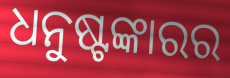
ଧନୁଷ୍ଟଙ୍କାରର